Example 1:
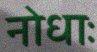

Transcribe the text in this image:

नोधाः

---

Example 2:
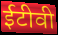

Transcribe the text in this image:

ईटीवी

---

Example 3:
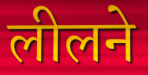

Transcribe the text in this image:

लीलने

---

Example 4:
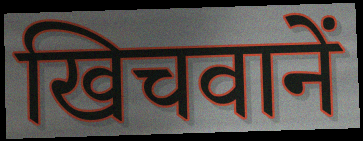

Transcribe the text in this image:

खिचवानें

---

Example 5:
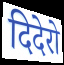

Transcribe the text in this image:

दिदेरो